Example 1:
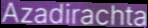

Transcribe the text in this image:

Azadirachta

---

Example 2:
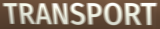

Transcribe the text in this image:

TRANSPORT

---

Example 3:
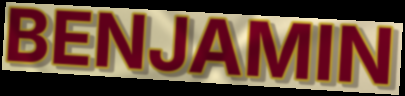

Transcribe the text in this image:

BENJAMIN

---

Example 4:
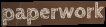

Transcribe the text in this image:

paperwork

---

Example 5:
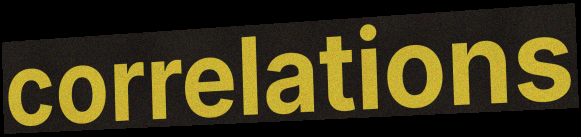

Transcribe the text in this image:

correlations